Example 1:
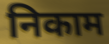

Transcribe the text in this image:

निकाम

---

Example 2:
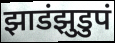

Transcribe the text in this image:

झाडंझुडुपं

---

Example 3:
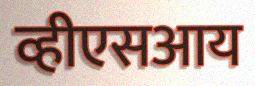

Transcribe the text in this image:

व्हीएसआय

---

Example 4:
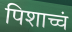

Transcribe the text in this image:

पिशाच्चं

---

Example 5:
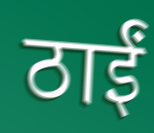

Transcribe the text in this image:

ठाईं